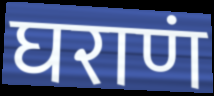
घराणं